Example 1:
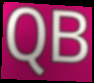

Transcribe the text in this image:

QB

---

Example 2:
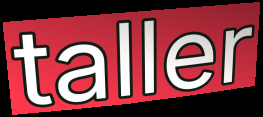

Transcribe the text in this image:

taller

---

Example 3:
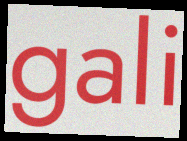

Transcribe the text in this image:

gali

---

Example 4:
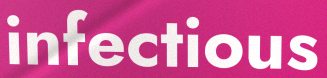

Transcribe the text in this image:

infectious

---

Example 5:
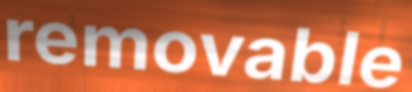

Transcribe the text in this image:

removable